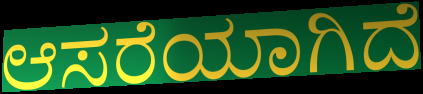
ಆಸರೆಯಾಗಿದೆ